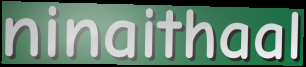
ninaithaal